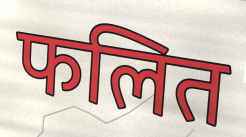
फलित